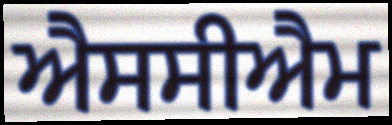
ਐਸਸੀਐਮ